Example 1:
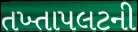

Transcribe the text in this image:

તખ્તાપલટની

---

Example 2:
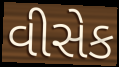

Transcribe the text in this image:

વીસેક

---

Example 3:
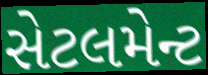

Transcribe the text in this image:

સેટલમેન્ટ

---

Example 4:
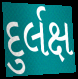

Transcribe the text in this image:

દુર્લક્ષ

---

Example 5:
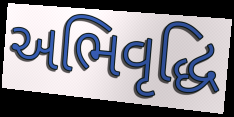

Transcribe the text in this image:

અભિવૃદ્ધિ